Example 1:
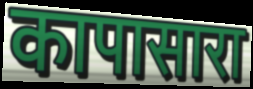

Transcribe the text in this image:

कापासारा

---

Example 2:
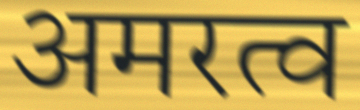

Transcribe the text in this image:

अमरत्व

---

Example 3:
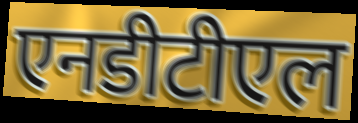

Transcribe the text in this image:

एनडीटीएल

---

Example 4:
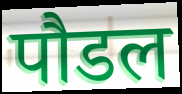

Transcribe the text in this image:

पौडल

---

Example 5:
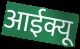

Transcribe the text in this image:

आईक्यू